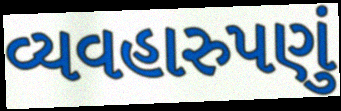
વ્યવહારુપણું